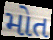
મોત